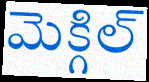
మెక్గిల్